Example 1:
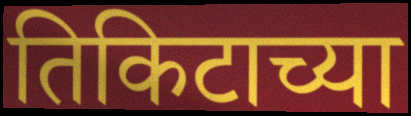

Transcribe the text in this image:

तिकिटाच्या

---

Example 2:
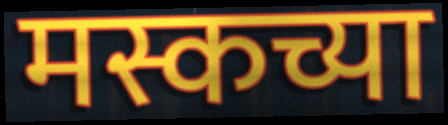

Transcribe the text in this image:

मस्कच्या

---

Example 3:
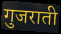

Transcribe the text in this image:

गुजराती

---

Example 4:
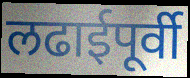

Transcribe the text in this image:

लढाईपूर्वी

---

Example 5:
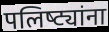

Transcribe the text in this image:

पलिष्ट्यांना